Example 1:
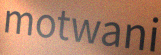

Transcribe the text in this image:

motwani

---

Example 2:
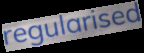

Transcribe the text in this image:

regularised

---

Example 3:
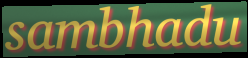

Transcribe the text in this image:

sambhadu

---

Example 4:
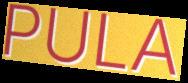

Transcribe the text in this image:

PULA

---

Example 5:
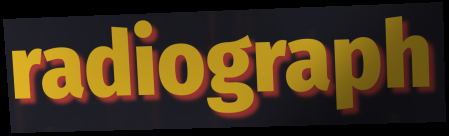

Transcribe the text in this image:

radiograph